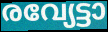
രവ്യേട്ടാ